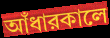
আঁধারকালে